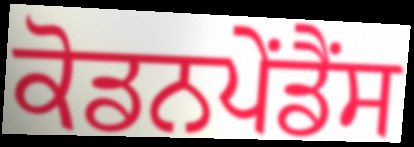
ਕੋਡਨਪੇਂਡੈਂਸ